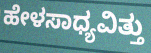
ಹೇಳಸಾಧ್ಯವಿತ್ತು